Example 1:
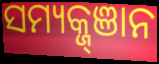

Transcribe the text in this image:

ସମ୍ୟକ୍ଜ୍ଞାନ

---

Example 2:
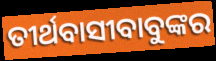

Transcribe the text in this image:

ତୀର୍ଥବାସୀବାବୁଙ୍କର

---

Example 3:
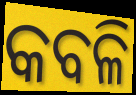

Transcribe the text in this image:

କବଳି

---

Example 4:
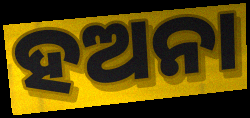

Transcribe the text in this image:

ହଅନା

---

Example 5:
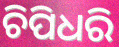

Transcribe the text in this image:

ଚିପିଧରି